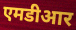
एमडीआर